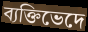
ব্যক্তিভেদে